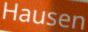
Hausen